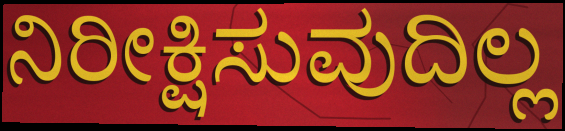
ನಿರೀಕ್ಷಿಸುವುದಿಲ್ಲ